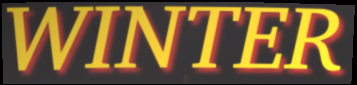
WINTER